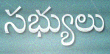
సభ్యులు